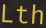
Lth